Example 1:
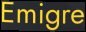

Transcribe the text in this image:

Emigre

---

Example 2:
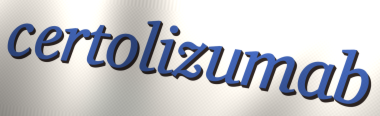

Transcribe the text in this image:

certolizumab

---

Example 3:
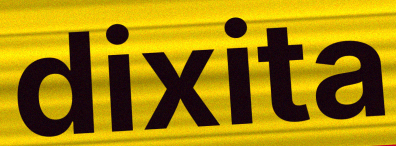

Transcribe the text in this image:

dixita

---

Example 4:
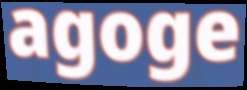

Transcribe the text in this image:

agoge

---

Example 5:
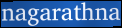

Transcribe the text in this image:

nagarathna